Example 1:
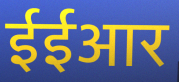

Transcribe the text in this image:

ईईआर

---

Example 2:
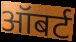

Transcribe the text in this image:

ऑबर्ट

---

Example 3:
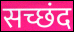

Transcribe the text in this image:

सच्छंद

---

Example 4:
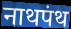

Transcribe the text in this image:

नाथपंथ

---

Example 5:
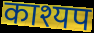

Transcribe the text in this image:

काश्यप